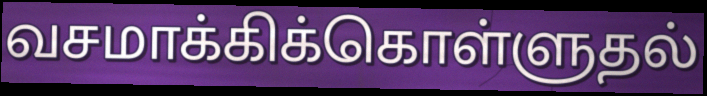
வசமாக்கிக்கொள்ளுதல்